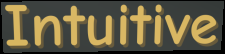
Intuitive